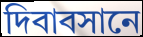
দিবাবসানে